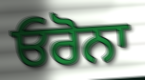
ਓਰੋਨਾ